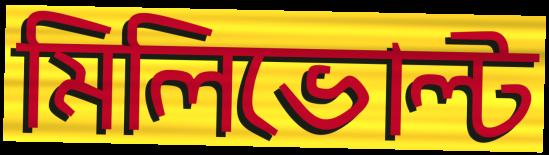
মিলিভোল্ট